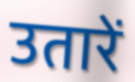
उतारें